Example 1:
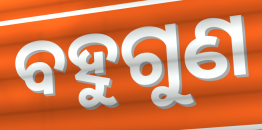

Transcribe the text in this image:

ବହୁଗୁଣ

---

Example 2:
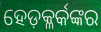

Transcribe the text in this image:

ହେଡ଼କ୍ଳର୍କଙ୍କର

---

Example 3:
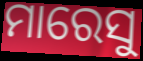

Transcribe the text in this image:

ମାରେସୁ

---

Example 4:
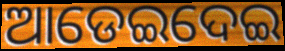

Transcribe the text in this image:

ଆଡେଇଦେଇ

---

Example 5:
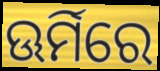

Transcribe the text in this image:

ଊର୍ମିରେ